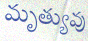
మృత్యువు